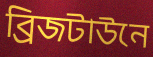
ব্রিজটাউনে